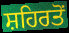
ਸ਼ਹਿਰਤੋਂ